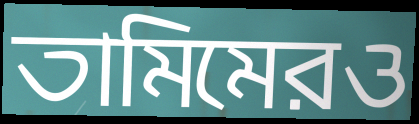
তামিমেরও